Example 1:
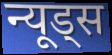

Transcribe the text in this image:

न्यूड्स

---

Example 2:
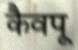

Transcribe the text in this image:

कैवपू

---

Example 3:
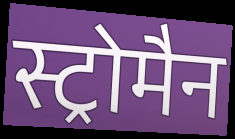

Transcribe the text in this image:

स्ट्रोमैन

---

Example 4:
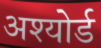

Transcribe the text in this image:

अश्योर्ड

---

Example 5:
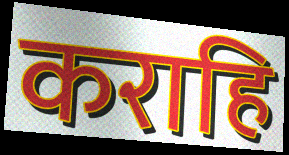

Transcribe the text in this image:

कराहि